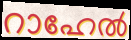
റാഹേൽ